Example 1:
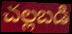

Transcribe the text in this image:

చల్లబడి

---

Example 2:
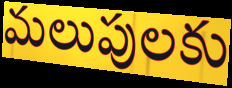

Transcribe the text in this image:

మలుపులకు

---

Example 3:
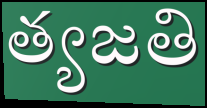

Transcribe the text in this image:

త్యజతి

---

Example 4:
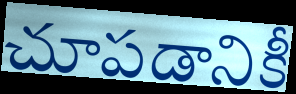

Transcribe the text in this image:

చూపడానికీ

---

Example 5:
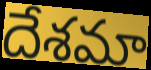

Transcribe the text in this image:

దేశమా